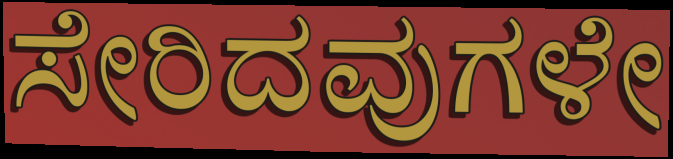
ಸೇರಿದವುಗಳೇ